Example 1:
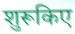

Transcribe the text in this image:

शुरूकिए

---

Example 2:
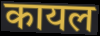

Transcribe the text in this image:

कायल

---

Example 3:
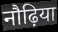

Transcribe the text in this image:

नौढ़िया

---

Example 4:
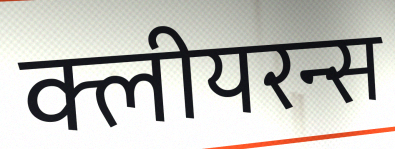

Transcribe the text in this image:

क्लीयरन्स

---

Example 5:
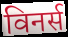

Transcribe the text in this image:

विनर्स